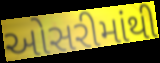
ઓસરીમાંથી